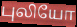
புலியோ